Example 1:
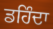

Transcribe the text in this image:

ਡਹਿੰਦਾ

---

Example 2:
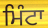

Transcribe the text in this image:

ਮਿੰਟਾ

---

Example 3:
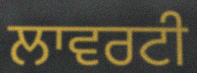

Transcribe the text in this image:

ਲਾਵਰਟੀ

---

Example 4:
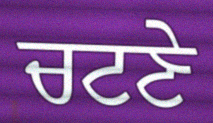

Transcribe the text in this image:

ਚਟਣੇ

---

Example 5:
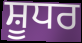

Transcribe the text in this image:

ਸ਼ੂਧਰ